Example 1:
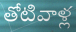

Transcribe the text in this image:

తోటివాళ్ల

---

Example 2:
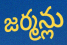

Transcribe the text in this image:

జర్మన్లు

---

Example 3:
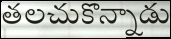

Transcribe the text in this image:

తలచుకొన్నాడు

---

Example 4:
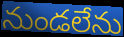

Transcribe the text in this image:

నుండలేను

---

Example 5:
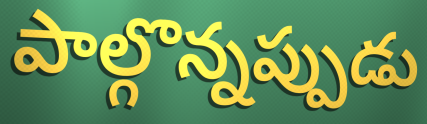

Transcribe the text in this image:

పాల్గొన్నప్పుడు